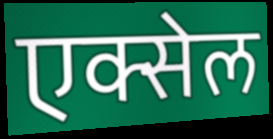
एक्सेल